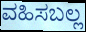
ವಹಿಸಬಲ್ಲ